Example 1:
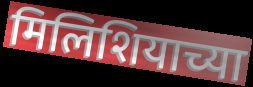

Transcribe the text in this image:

मिलिशियाच्या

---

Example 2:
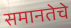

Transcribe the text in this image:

समानतेचे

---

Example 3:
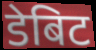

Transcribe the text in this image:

डेबिट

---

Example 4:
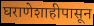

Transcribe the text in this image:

घराणेशाहीपासून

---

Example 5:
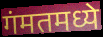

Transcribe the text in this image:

गंमतमध्ये